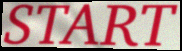
START